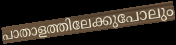
പാതാളത്തിലേക്കുപോലും